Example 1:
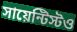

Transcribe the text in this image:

সায়েন্টিস্টও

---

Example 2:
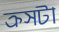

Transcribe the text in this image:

ক্রসটা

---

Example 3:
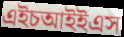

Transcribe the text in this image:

এইচআইইএস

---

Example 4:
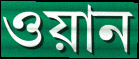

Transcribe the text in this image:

ওয়ান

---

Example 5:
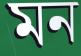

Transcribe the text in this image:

মন